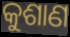
କୁଶାଣ